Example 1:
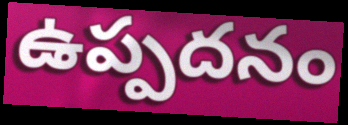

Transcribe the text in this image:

ఉప్పదనం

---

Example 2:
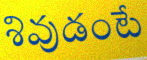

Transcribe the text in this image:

శివుడంటే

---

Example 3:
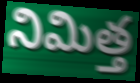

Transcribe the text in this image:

నిమిత్త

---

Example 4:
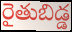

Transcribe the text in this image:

రైతుబిడ్డ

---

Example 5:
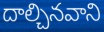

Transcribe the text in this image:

దాల్చినవాని